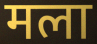
मला